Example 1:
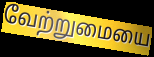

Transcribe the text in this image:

வேற்றுமையை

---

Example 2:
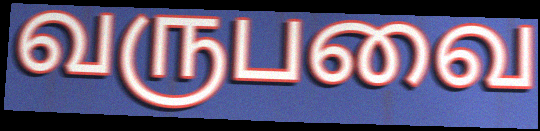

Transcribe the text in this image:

வருபவை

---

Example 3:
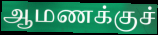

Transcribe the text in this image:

ஆமணக்குச்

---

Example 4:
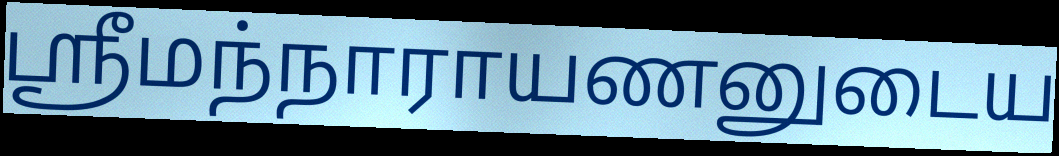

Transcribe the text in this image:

ஸ்ரீமந்நாராயணனுடைய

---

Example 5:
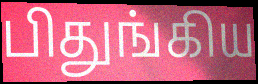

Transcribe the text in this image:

பிதுங்கிய